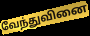
வேந்துவினை